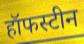
हॉफस्टीन